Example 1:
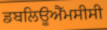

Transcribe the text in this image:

ਡਬਲਿਊਐੱਮਸੀਸੀ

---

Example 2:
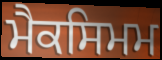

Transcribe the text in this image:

ਮੈਕਸਿਮਮ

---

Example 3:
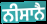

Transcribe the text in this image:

ਨੀਸਾਨੈ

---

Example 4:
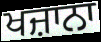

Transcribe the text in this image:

ਖਜ਼ਾਨਾ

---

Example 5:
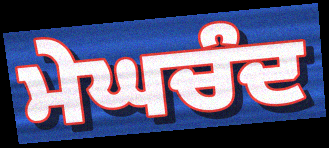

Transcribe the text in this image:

ਮੇਘਚੰਦ